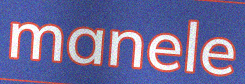
manele